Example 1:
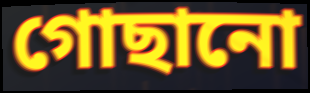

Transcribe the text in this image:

গোছানো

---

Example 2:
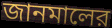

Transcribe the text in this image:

জানমালের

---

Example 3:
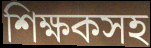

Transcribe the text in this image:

শিক্ষকসহ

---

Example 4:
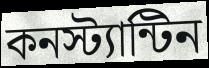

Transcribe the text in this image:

কনস্ট্যান্টিন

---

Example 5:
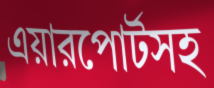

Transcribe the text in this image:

এয়ারপোর্টসহ